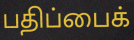
பதிப்பைக்